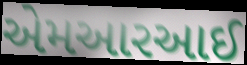
એમઆરઆઈ